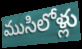
ముసిలోళ్లు